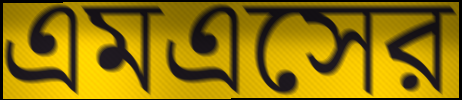
এমএসের